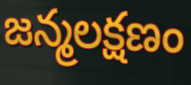
జన్మలక్షణం